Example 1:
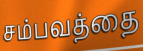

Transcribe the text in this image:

சம்பவத்தை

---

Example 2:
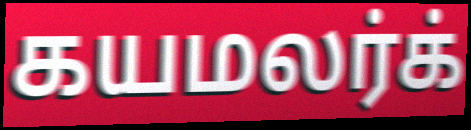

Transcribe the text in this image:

கயமலர்க்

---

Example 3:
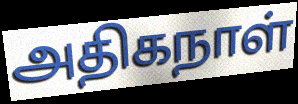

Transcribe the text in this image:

அதிகநாள்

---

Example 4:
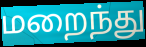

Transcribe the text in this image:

மறைந்து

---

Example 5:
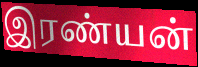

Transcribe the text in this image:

இரண்யன்